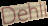
Dehli